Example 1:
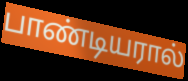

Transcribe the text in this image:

பாண்டியரால்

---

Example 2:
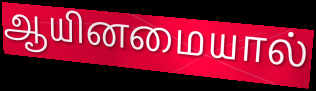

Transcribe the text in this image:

ஆயினமையால்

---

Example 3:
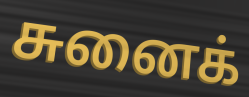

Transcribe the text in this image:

சுனைக்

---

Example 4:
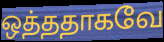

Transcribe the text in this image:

ஒத்ததாகவே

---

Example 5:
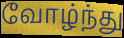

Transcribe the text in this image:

வோழ்ந்து